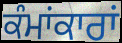
ਕੰਮਾਂਕਾਰਾਂ